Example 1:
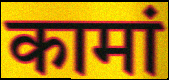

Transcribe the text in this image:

कामां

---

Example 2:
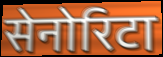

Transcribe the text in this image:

सेनोरिटा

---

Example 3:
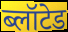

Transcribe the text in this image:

ब्लॉटेड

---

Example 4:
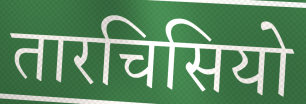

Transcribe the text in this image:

तारचिसियो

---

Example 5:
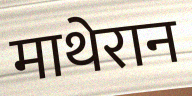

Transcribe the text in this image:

माथेरान